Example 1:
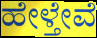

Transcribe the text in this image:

ಹೇಳ್ತೇವೆ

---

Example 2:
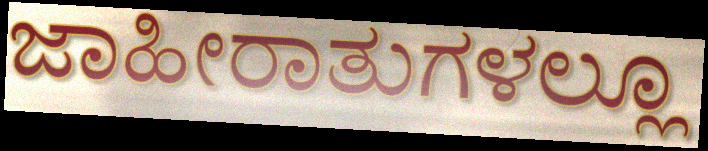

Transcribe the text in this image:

ಜಾಹೀರಾತುಗಳಲ್ಲೂ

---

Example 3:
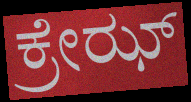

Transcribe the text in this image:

ಕ್ರೇಝ್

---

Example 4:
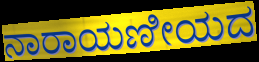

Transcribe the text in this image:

ನಾರಾಯಣೀಯದ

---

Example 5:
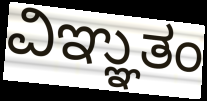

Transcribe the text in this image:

ವಿಞ್ಞುತಂ